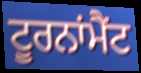
ਟੂਰਨਾਂਮੈਂਟ